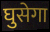
घुसेगा